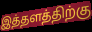
இத்தளத்திற்கு